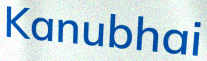
Kanubhai